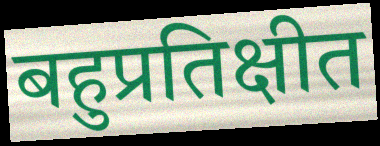
बहुप्रतिक्षीत